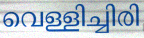
വെള്ളിച്ചിരി